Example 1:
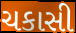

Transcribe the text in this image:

ચકાસી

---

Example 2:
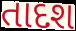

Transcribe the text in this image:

તાદશ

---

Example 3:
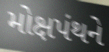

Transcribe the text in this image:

મોક્ષપંથને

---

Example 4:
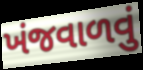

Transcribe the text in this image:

ખંજવાળવું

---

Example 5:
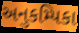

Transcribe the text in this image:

અનુકમ્પિકા